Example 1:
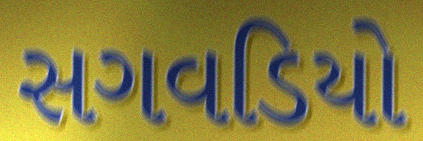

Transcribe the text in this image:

સગવડિયો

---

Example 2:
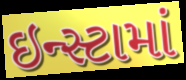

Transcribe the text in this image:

ઇન્સ્ટામાં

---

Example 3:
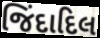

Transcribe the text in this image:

જિંદાદિલ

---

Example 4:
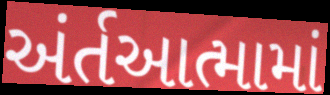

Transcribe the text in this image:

અંર્તઆત્મામાં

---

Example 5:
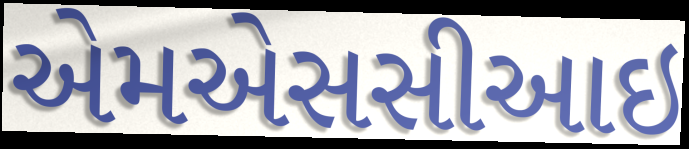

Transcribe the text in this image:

એમએસસીઆઇ